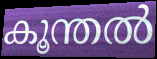
കൂന്തൽ